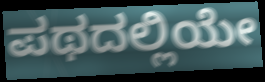
ಪಥದಲ್ಲಿಯೇ